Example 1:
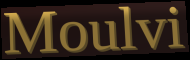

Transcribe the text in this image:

Moulvi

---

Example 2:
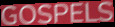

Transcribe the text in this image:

GOSPELS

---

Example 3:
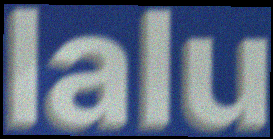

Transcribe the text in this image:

lalu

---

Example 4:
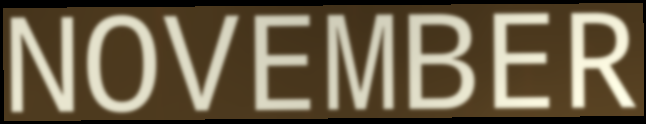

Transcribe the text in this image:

NOVEMBER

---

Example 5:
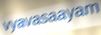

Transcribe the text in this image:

vyavasaayam